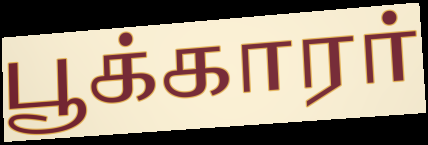
பூக்காரர்